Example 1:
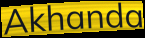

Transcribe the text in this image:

Akhanda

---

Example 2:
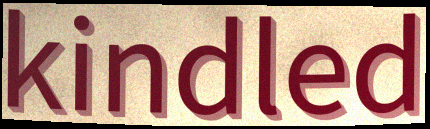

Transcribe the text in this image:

kindled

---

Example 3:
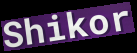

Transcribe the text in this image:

Shikor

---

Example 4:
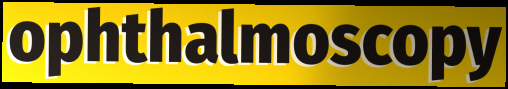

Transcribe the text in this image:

ophthalmoscopy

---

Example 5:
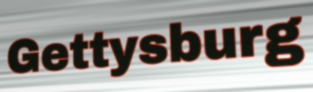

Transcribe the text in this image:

Gettysburg